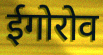
ईगोरोव